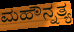
ಮಹೌನ್ನತ್ಯ